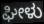
ಘೀಳು